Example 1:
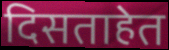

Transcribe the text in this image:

दिसताहेत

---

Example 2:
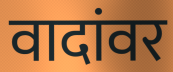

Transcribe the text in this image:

वादांवर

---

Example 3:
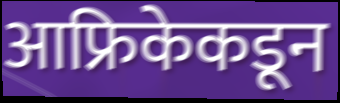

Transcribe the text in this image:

आफ्रिकेकडून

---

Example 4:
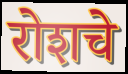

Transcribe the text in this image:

रोशचे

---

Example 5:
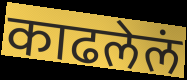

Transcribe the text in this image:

काढलेलं